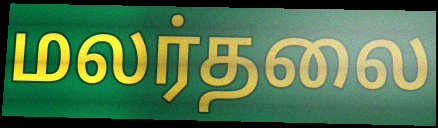
மலர்தலை